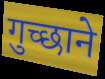
गुच्छाने